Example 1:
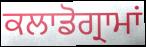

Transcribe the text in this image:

ਕਲਾਡੋਗ੍ਰਾਮਾਂ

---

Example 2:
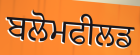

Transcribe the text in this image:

ਬਲੋਮਫੀਲਡ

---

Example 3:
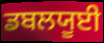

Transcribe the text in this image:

ਡਬਲਯੂਈ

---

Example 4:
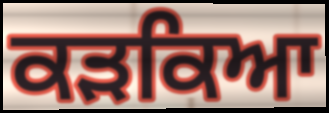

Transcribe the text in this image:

ਕੜਕਿਆ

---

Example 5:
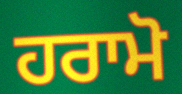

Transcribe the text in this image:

ਹਰਾਮੋ